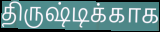
திருஷ்டிக்காக